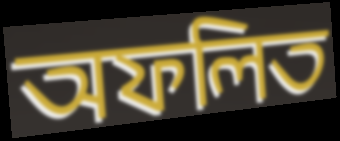
অফলিত